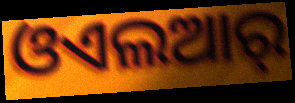
ଓଏଲଆର୍